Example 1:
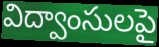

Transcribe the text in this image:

విద్వాంసులపై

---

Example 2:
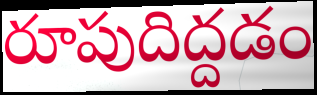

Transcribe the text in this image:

రూపుదిద్దడం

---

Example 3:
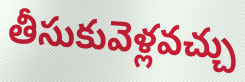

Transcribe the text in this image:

తీసుకువెళ్లవచ్చు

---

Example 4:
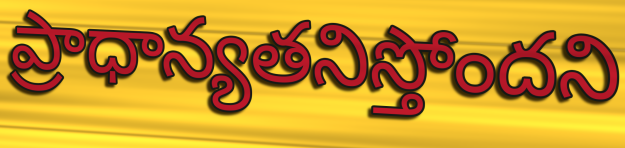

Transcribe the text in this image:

ప్రాధాన్యతనిస్తోందని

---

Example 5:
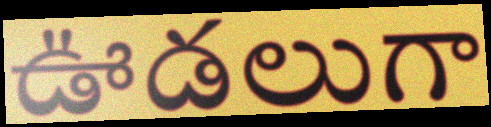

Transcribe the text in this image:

ఊడలుగా